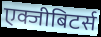
एक्जीबिटर्स